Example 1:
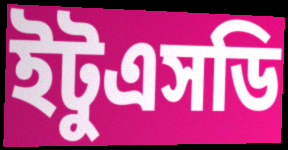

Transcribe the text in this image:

ইটুএসডি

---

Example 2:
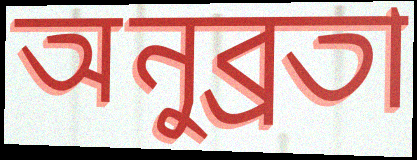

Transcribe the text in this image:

অনুব্রতা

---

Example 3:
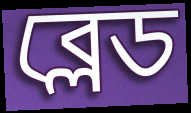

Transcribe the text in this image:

ব্লেড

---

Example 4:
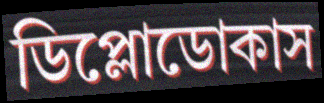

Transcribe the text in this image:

ডিপ্লোডোকাস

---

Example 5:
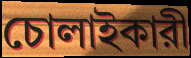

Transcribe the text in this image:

চোলাইকারী